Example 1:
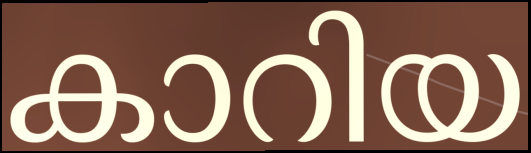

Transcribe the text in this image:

കാറിയ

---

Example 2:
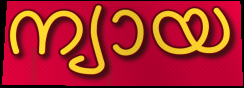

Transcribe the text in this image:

ന്യായ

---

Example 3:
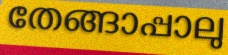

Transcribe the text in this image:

തേങ്ങാപ്പാലു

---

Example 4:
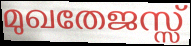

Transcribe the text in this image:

മുഖതേജസ്സ്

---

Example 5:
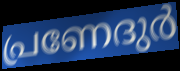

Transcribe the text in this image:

പ്രണേദുർ